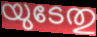
യുടേതു